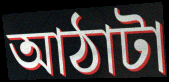
আঠাটা